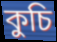
কুচি